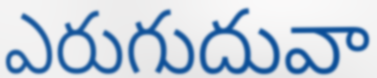
ఎరుగుదువా